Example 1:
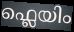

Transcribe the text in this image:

ഫ്ലെയിം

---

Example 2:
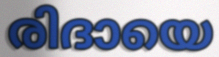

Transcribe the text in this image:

രിദായെ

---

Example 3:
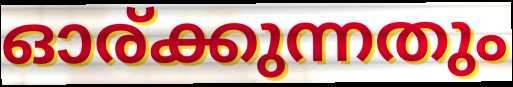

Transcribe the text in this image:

ഓര്ക്കുന്നതും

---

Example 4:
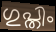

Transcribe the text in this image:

ഗുപ്തിം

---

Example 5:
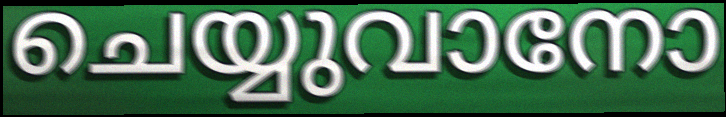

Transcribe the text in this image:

ചെയ്യുവാനോ